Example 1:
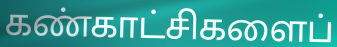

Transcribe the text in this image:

கண்காட்சிகளைப்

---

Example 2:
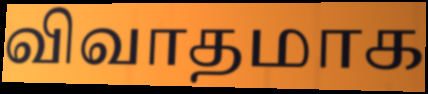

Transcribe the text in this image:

விவாதமாக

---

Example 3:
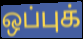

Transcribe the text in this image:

ஒப்புக்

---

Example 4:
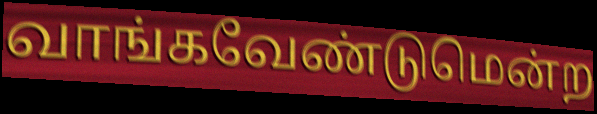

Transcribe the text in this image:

வாங்கவேண்டுமென்ற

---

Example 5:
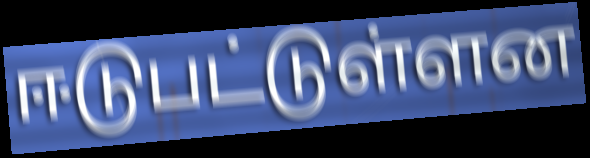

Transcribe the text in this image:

ஈடுபட்டுள்ளன